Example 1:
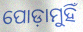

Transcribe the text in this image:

ପୋଡ଼ାମୁହିଁ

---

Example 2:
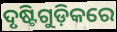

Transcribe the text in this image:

ଦୃଷ୍ଟିଗୁଡ଼ିକରେ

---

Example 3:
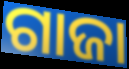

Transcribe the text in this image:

ଗାଜା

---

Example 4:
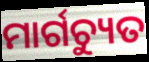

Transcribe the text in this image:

ମାର୍ଗଚ୍ୟୁତ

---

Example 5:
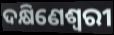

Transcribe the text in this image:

ଦକ୍ଷିଣେଶ୍ଵରୀ